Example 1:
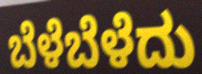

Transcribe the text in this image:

ಬೆಳೆಬೆಳೆದು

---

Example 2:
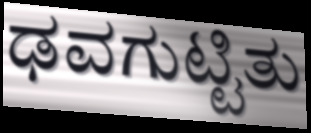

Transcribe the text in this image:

ಢವಗುಟ್ಟಿತು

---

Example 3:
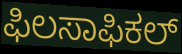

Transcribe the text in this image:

ಫಿಲಸಾಫಿಕಲ್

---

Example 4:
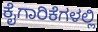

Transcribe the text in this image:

ಕೈಗಾರಿಕೆಗಳಲ್ಲಿ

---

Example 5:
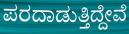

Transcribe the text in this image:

ಪರದಾಡುತ್ತಿದ್ದೇವೆ